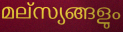
മല്സ്യങ്ങളും